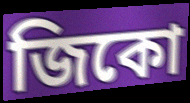
জিকো